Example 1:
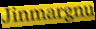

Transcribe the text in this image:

Jinmargnu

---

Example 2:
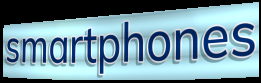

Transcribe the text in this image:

smartphones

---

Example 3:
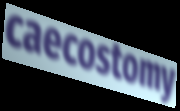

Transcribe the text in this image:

caecostomy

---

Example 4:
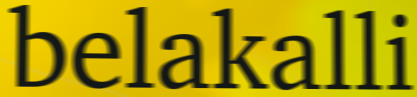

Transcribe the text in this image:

belakalli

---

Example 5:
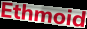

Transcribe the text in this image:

Ethmoid